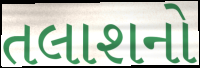
તલાશનો